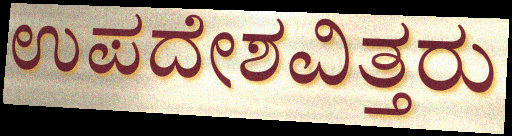
ಉಪದೇಶವಿತ್ತರು